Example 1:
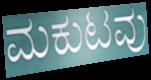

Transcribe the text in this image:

ಮಕುಟವು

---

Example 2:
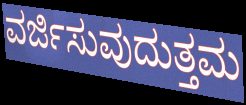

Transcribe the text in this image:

ವರ್ಜಿಸುವುದುತ್ತಮ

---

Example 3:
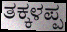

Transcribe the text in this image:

ತಕ್ಕಳಪ್ಪ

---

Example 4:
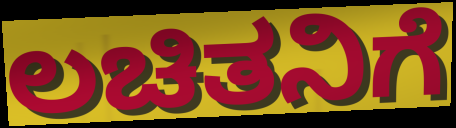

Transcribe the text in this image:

ಲಚಿತನಿಗೆ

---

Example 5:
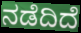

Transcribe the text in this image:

ನಡೆದಿದೆ